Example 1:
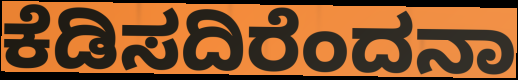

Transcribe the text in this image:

ಕೆಡಿಸದಿರೆಂದನಾ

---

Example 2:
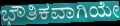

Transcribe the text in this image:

ಭೌತಿಕವಾಗಿಯೇ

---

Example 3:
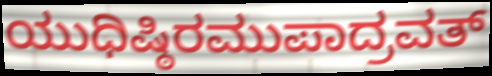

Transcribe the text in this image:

ಯುಧಿಷ್ಠಿರಮುಪಾದ್ರವತ್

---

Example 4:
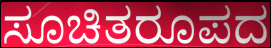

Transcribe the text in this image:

ಸೂಚಿತರೂಪದ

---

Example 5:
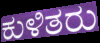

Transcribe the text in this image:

ಕುಳಿತರು